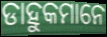
ଡାହୁକମାନେ